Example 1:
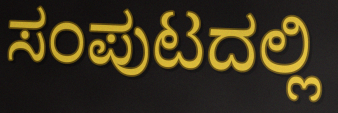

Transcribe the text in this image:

ಸಂಪುಟದಲ್ಲಿ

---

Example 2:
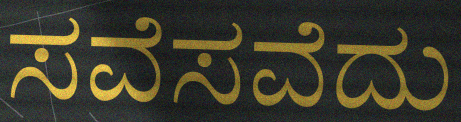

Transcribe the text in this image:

ಸವೆಸವೆದು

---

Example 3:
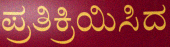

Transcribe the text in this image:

ಪ್ರತಿಕ್ರಿಯಿಸಿದ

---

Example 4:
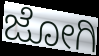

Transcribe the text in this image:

ಜೋಗಿ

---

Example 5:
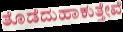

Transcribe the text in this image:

ತೊಡೆದುಹಾಕುತ್ತೇವೆ